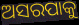
ଅସରପାକୁ